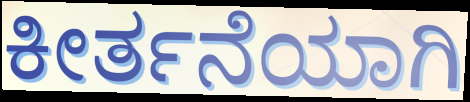
ಕೀರ್ತನೆಯಾಗಿ